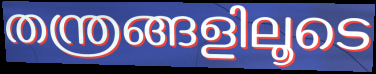
തന്ത്രങ്ങളിലൂടെ